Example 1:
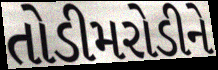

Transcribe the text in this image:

તોડીમરોડીને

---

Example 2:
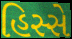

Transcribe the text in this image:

હિસ્સે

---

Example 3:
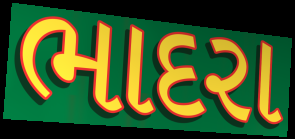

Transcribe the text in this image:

ભાદરા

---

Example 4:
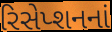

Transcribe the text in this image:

રિસેપ્શનનાં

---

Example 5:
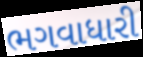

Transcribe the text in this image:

ભગવાધારી